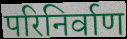
परिनिर्वाण